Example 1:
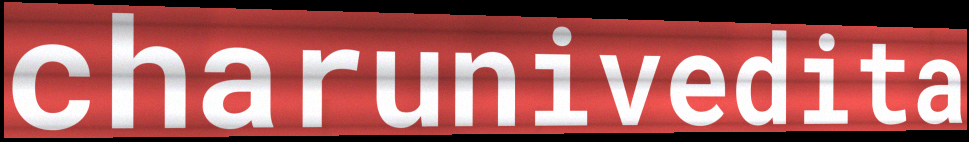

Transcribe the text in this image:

charunivedita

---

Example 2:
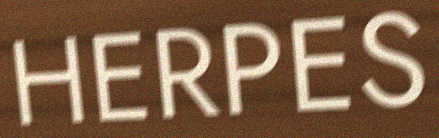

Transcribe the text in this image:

HERPES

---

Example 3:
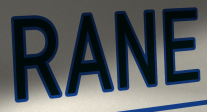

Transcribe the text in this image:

RANE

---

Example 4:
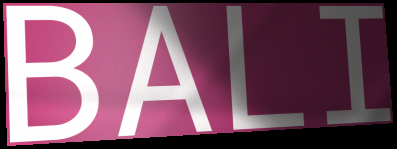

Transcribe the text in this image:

BALI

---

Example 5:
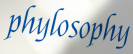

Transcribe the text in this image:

phylosophy